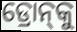
ଡ୍ରୋନ୍‌କୁ